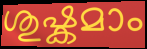
ശുഷ്കമാം